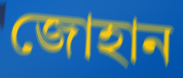
জোহান